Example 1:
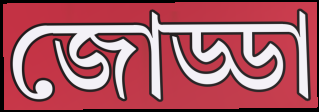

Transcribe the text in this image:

জোড্ডা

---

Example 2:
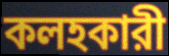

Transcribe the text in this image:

কলহকারী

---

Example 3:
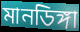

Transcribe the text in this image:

মানডিঙ্গা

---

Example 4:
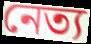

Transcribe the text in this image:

নেত্য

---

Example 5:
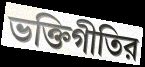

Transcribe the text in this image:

ভক্তিগীতির